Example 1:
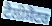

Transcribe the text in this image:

ਟੈਲੀਸੈਂਟਰ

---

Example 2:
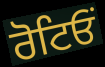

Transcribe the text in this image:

ਰੋਟਿਓਂ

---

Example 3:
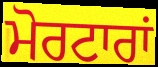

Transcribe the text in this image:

ਮੋਰਟਾਰਾਂ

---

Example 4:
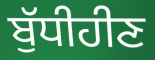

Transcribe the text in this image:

ਬੁੱਧੀਹੀਣ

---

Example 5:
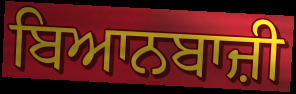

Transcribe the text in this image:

ਬਿਆਨਬਾਜ਼ੀ